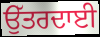
ਉੱਤਰਦਾਈ